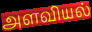
அளவியல்